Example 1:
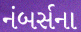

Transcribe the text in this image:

નંબર્સના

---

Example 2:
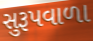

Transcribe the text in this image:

સુરૂપવાળા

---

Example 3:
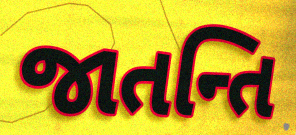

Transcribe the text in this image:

જાતન્તિ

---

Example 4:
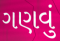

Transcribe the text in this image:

ગણવું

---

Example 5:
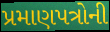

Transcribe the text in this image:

પ્રમાણપત્રોની